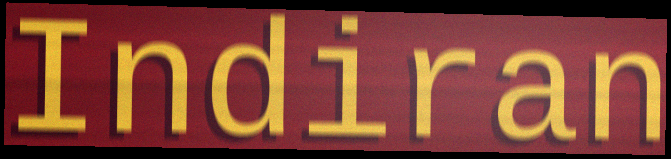
Indiran